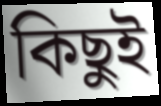
কিছুই